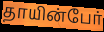
தாயின்பேர்